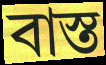
বাস্ত